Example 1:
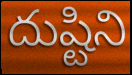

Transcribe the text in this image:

దుష్టిని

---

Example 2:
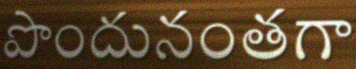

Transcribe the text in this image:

పొందునంతగా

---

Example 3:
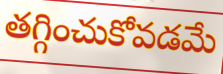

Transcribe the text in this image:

తగ్గించుకోవడమే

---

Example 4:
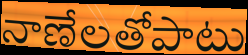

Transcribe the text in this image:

నాణేలతోపాటు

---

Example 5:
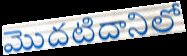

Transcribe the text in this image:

మొదటిదానిలో